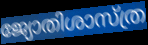
ജ്യോതിശാസ്ത്ര